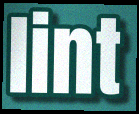
lint